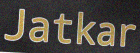
Jatkar